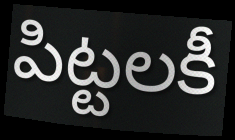
పిట్టలకీ